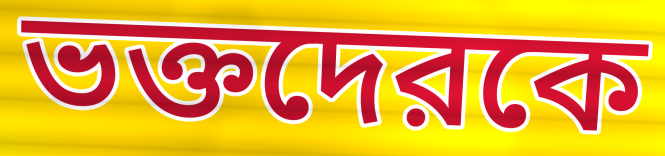
ভক্তদেরকে